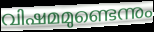
വിഷമമുണ്ടെന്നും